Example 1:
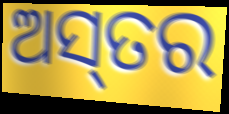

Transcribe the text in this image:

ଅସ୍‌ତର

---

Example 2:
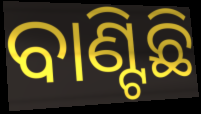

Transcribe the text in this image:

ବାଣ୍ଟିଛି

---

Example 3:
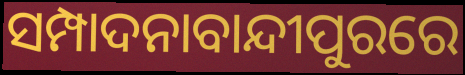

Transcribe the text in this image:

ସମ୍ପାଦନାବାନ୍ଦୀପୁରରେ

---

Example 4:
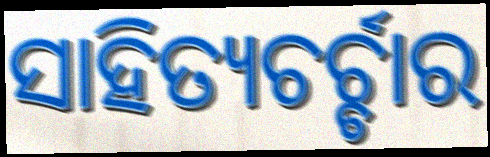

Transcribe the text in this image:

ସାହିତ୍ୟଚର୍ଚ୍ଚାର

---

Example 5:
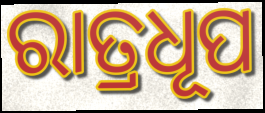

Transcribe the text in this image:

ରାତ୍ରଧୂପ